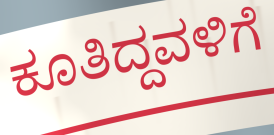
ಕೂತಿದ್ದವಳಿಗೆ